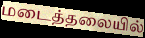
மடைத்தலையில்